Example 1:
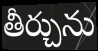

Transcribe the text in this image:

తీర్చును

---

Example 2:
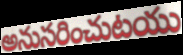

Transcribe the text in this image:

అనుసరించుటయు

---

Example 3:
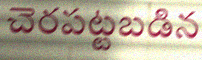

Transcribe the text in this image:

చెరపట్టబడిన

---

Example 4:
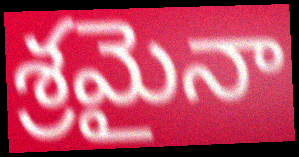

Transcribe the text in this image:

శ్రమైనా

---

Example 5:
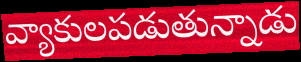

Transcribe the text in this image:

వ్యాకులపడుతున్నాడు